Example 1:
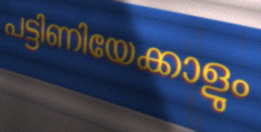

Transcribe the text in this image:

പട്ടിണിയേക്കാളും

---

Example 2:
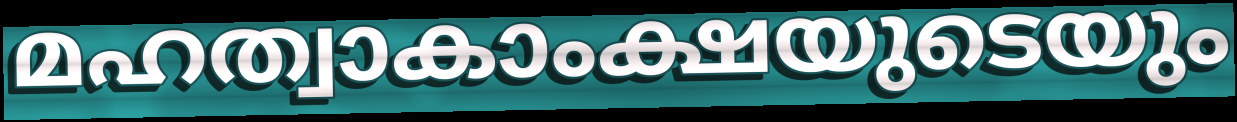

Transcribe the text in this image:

മഹത്വാകാംക്ഷയുടെയും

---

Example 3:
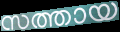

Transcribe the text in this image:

സത്തായ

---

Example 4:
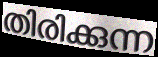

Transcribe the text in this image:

തിരിക്കുന്ന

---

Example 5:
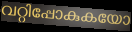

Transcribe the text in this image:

വറ്റിപ്പോകുകയോ